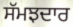
ਸੱਮਝਦਾਰ